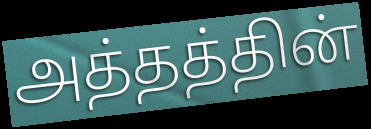
அத்தத்தின்